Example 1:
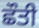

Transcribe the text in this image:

ਛੌਤੀ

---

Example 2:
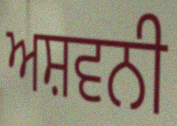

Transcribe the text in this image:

ਅਸ਼ਵਨੀ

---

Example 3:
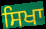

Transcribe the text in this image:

ਸਿਖਾ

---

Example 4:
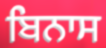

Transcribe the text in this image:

ਬਿਨਾਸ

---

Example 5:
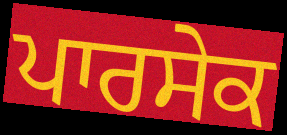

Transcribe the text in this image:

ਪਾਰਸੇਕ